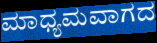
ಮಾಧ್ಯಮವಾಗದ